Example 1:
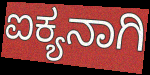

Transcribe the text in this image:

ಐಕ್ಯನಾಗಿ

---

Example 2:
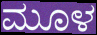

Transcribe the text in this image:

ಮೂಳ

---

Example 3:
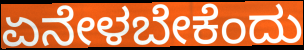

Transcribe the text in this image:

ಏನೇಳಬೇಕೆಂದು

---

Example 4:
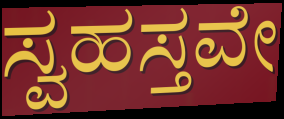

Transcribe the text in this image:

ಸ್ವಹಸ್ತವೇ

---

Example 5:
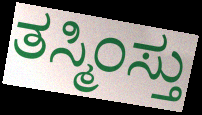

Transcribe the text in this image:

ತಸ್ಮಿಂಸ್ತು